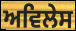
ਅਵਿਲੇਸ